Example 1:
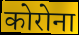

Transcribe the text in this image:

कोरोना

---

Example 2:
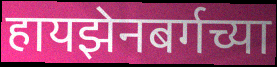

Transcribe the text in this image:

हायझेनबर्गच्या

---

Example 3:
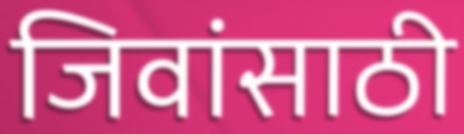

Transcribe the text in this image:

जिवांसाठी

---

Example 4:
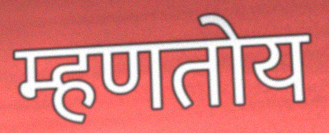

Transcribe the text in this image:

म्हणतोय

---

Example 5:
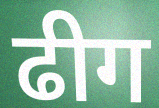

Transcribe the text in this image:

ढीग